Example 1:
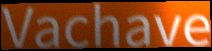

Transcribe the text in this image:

Vachave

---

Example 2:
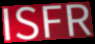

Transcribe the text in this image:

ISFR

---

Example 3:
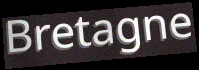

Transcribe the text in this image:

Bretagne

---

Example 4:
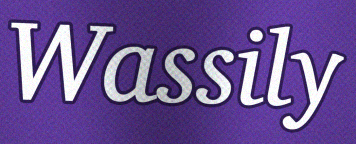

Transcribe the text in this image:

Wassily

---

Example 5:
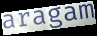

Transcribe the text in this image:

aragam